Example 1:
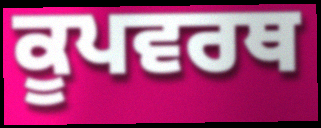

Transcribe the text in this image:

ਕੂਪਵਰਥ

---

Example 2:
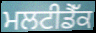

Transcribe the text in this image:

ਮਲਟੀਡੈੱਕ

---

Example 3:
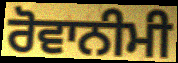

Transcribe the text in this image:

ਰੋਵਾਨੀਮੀ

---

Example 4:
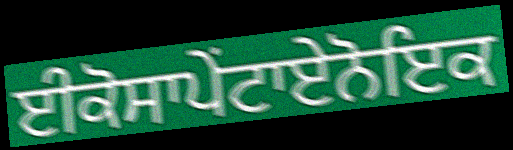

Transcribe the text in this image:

ਈਕੋਸਾਪੇਂਟਾਏਨੋਇਕ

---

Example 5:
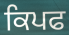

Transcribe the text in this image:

ਕਿਪਫ